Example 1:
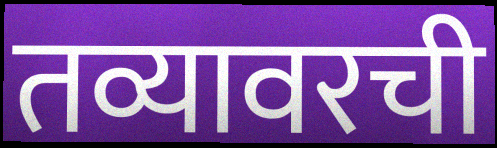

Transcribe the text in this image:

तव्यावरची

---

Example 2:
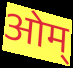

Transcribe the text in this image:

ओम्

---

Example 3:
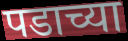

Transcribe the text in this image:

पडाच्या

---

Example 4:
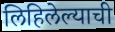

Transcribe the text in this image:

लिहिलेल्याची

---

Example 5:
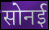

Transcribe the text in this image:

सोनई